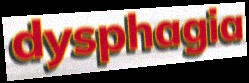
dysphagia